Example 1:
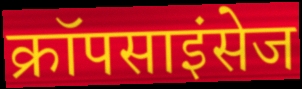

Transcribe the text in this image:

क्रॉपसाइंसेज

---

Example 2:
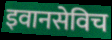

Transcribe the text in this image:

इवानसेविच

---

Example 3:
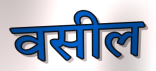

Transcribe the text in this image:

वसील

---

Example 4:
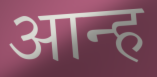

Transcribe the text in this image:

आन्ह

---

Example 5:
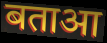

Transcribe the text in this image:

बताआ